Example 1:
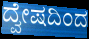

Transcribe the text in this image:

ದ್ವೇಷದಿಂದ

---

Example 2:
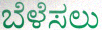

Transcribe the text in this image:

ಬೆಳೆಸಲು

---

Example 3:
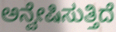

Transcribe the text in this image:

ಅನ್ವೇಷಿಸುತ್ತಿದೆ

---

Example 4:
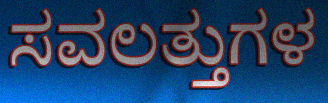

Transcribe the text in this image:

ಸವಲತ್ತುಗಳ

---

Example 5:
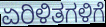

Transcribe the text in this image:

ಏರಿಳಿತಗಳಿಗೆ